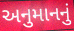
અનુમાનનું